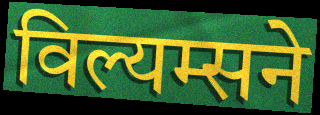
विल्यम्सने